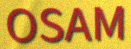
OSAM